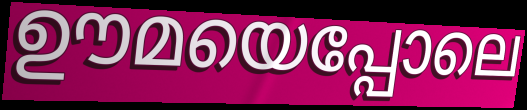
ഊമയെപ്പോലെ